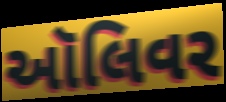
ઑલિવર